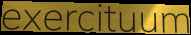
exercituum